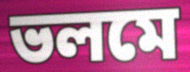
ভলমে